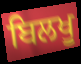
ਬਿਲਖੂ